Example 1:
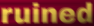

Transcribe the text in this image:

ruined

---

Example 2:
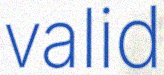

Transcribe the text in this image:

valid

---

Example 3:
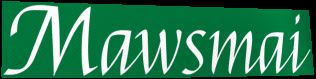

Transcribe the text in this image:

Mawsmai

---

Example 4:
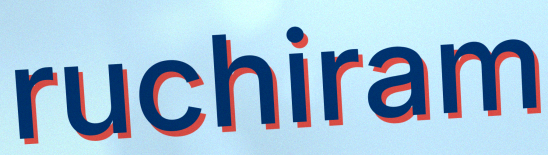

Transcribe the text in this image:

ruchiram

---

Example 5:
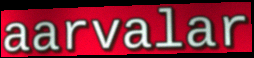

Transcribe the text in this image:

aarvalar